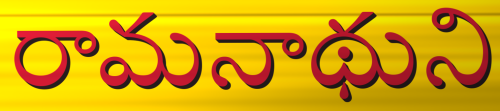
రామనాథుని